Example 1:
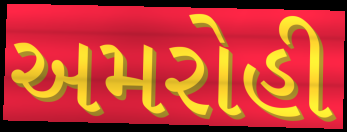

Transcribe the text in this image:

અમરોહી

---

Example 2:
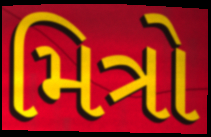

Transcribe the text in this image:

મિત્રો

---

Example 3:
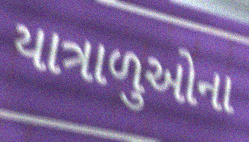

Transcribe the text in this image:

યાત્રાળુઓના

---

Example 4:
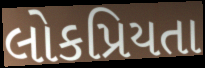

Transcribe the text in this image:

લોકપ્રિયતા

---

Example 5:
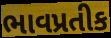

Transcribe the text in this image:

ભાવપ્રતીક